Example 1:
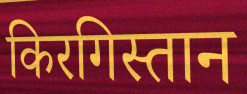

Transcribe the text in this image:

किरगिस्तान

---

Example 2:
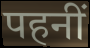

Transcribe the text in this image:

पहनीं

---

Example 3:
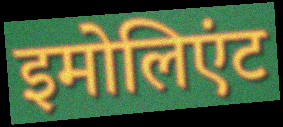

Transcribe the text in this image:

इमोलिएंट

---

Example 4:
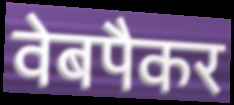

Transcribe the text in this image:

वेबपैकर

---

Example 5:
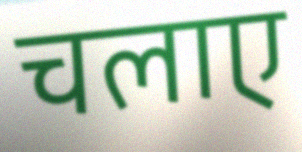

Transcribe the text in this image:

चलाए